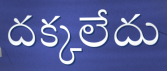
దక్కలేదు